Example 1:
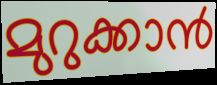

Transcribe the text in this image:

മുറുക്കാൻ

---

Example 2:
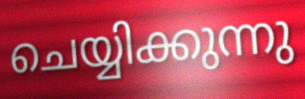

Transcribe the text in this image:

ചെയ്യിക്കുന്നു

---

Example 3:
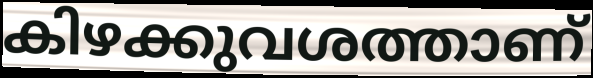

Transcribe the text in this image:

കിഴക്കുവശത്താണ്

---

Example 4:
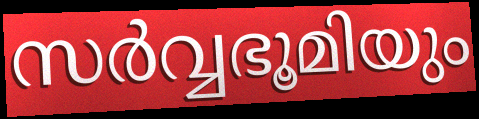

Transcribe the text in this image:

സർവ്വഭൂമിയും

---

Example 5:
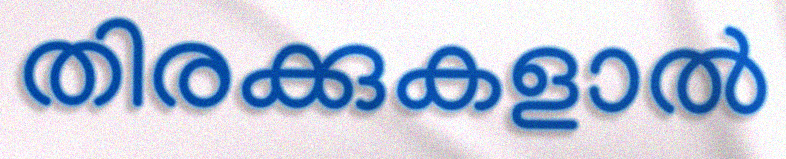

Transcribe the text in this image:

തിരക്കുകളാൽ